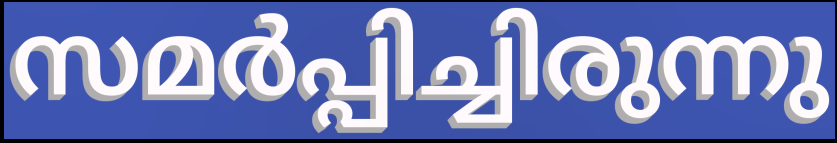
സമർപ്പിച്ചിരുന്നു